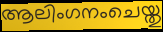
ആലിംഗനംചെയ്തു